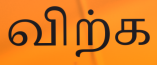
விற்க